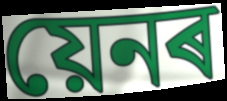
য়েনৰ